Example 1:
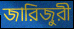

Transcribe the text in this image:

জারিজুরী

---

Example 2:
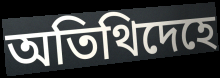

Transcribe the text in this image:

অতিথিদেহে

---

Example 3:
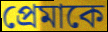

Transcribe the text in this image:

প্রেমাকে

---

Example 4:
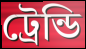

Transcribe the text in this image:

ট্রেন্ডি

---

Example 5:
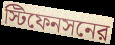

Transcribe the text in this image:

স্টিফেনসনের